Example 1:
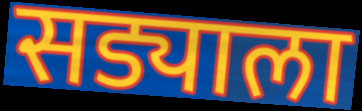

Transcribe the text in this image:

सड्याला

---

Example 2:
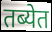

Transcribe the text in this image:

तब्येत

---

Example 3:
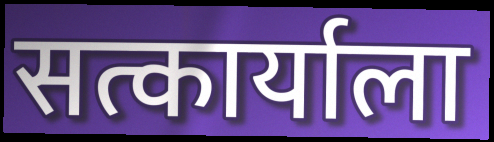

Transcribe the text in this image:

सत्कार्याला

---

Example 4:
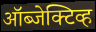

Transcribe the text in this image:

ऑब्जेक्टिव्ह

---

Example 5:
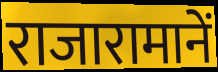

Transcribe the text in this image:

राजारामानें